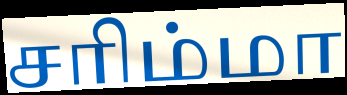
சரிம்மா